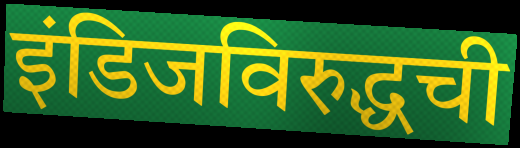
इंडिजविरुद्धची